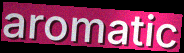
aromatic